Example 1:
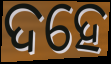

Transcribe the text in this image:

ଦହେ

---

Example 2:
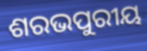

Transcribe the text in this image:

ଶରଭପୁରୀୟ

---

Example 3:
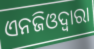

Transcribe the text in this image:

ଏନଜିଓଦ୍ୱାରା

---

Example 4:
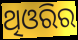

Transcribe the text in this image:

ଥିଓରିର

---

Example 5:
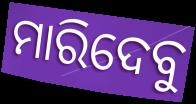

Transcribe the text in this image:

ମାରିଦେବୁ